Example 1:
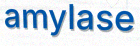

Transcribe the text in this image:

amylase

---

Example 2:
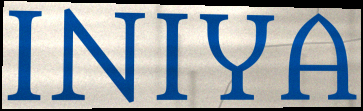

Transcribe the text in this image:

INIYA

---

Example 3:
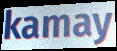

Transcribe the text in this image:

kamay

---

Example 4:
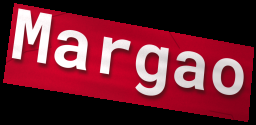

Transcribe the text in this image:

Margao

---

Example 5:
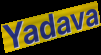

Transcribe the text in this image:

Yadava